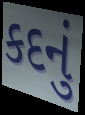
કદનું